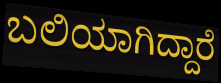
ಬಲಿಯಾಗಿದ್ದಾರೆ